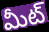
మీట్